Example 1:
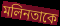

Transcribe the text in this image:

মলিনতাকে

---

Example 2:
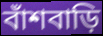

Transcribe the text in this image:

বাঁশবাড়ি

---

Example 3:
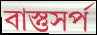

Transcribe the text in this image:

বাস্তুসর্প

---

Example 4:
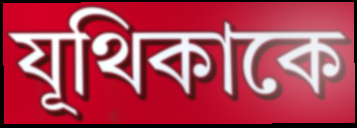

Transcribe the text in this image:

যূথিকাকে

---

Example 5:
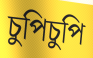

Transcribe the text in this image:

চুপিচুপি